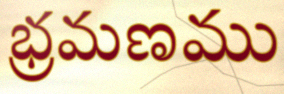
భ్రమణము